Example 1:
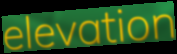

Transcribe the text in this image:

elevation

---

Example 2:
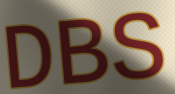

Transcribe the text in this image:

DBS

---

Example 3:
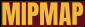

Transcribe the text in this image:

MIPMAP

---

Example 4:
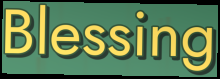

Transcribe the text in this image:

Blessing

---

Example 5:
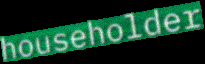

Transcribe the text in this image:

householder